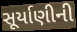
સૂર્યાણીની